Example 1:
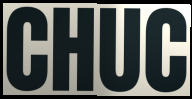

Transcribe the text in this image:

CHUC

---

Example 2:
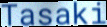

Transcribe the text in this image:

Tasaki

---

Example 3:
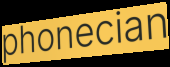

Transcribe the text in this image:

phonecian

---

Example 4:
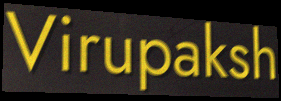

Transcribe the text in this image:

Virupaksh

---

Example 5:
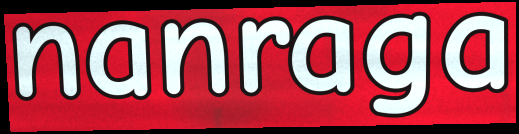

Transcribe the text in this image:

nanraga